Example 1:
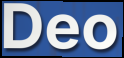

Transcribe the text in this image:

Deo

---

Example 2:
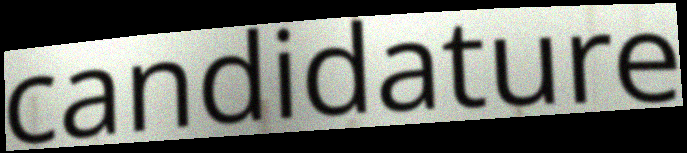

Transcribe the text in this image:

candidature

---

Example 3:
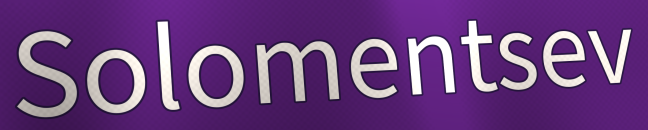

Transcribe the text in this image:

Solomentsev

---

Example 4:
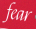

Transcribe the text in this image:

fear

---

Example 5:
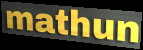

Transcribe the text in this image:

mathun